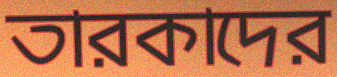
তারকাদের